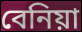
বেনিয়া